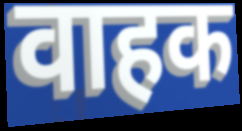
वाहक